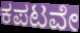
ಕಪಟವೇ